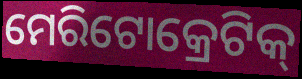
ମେରିଟୋକ୍ରେଟିକ୍